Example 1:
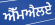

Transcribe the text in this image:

ਐੱਮਐਲਏ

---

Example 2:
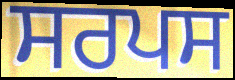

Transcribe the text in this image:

ਸਰਪਸ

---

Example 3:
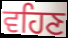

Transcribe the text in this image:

ਵਹਿਣ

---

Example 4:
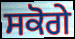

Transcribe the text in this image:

ਸਕੋਗੇ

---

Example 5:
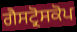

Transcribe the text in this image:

ਗੈਸਟ੍ਰੋਸਕੋਪ